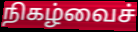
நிகழ்வைச்